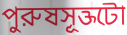
পুৰুষসূক্তটো